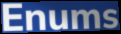
Enums